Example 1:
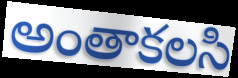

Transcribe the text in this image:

అంతాకలసి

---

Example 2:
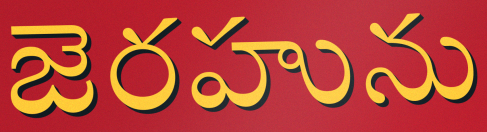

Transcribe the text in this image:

జెరహును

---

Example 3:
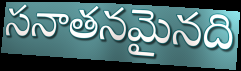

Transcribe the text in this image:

సనాతనమైనది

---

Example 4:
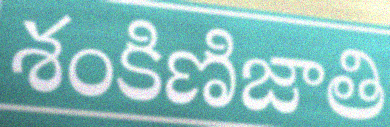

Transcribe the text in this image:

శంకిణిజాతి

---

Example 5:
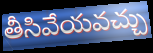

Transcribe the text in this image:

తీసివేయవచ్చు